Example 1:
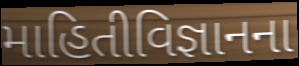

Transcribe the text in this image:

માહિતીવિજ્ઞાનના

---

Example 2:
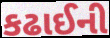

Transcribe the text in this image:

કઢાઈની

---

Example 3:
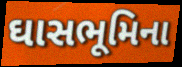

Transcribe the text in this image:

ઘાસભૂમિના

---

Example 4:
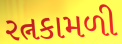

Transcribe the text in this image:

રત્નકામળી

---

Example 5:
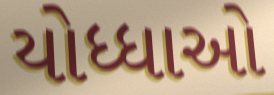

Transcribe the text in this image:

યોધ્ધાઓ